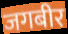
जगबीर